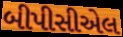
બીપીસીએલ